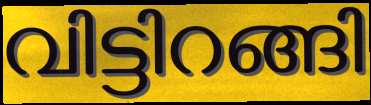
വിട്ടിറങ്ങി